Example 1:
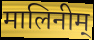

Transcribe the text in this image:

मालिनीम्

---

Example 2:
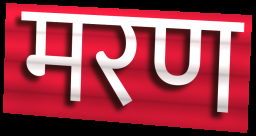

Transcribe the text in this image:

मरण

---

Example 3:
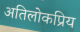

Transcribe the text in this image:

अतिलोकप्रिय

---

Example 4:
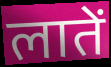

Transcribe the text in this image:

लातें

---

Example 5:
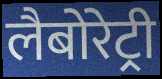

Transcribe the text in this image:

लैबोरेट्री